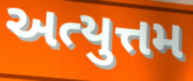
અત્યુત્તમ